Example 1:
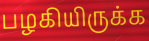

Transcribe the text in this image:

பழகியிருக்க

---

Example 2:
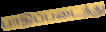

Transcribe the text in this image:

பாதிப்படைந்து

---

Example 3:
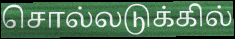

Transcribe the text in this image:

சொல்லடுக்கில்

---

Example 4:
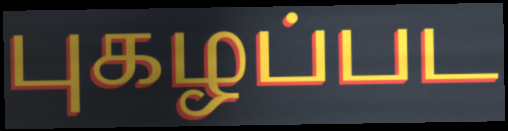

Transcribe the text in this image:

புகழப்பட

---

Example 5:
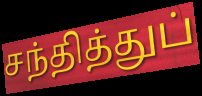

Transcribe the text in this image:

சந்தித்துப்